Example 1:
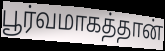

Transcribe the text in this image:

பூர்வமாகத்தான்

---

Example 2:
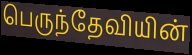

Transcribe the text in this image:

பெருந்தேவியின்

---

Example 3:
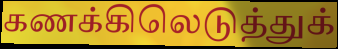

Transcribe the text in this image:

கணக்கிலெடுத்துக்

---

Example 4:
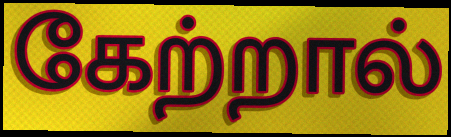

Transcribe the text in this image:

கேற்றால்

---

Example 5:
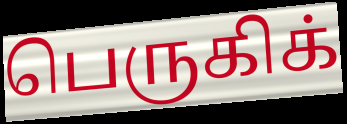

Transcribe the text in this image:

பெருகிக்